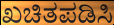
ಖಚಿತಪಡಿಸಿ